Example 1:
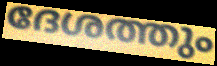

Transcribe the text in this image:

ദേശത്തും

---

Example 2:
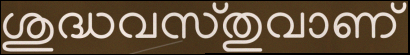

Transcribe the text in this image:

ശുദ്ധവസ്തുവാണ്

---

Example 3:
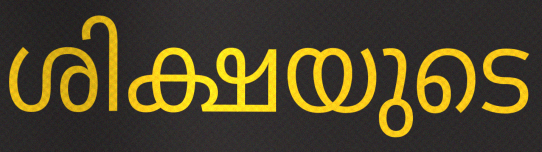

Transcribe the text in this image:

ശിക്ഷയുടെ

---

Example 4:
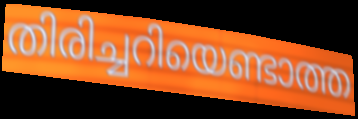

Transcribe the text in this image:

തിരിച്ചറിയെണ്ടാത്ത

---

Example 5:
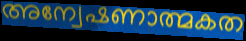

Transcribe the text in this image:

അന്വേഷണാത്മകത